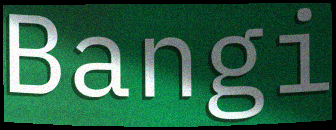
Bangi